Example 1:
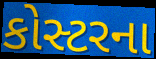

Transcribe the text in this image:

કોસ્ટરના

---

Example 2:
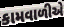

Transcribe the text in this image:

કામવાળીએ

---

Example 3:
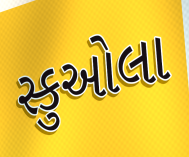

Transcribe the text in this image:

સ્કુઓલા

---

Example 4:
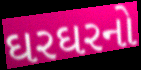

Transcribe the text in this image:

ઘરઘરનો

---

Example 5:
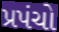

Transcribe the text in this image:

પ્રપંચો